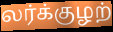
லர்க்குழற்